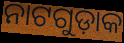
ନାଟଗୁଡ଼ାକ